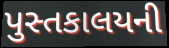
પુસ્તકાલયની